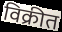
विक्रीत